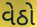
વેઠો